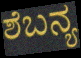
ಶೆಬನ್ಯ